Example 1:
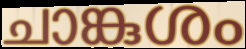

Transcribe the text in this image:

ചാങ്കുശം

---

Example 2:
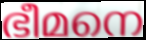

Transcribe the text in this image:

ഭീമനെ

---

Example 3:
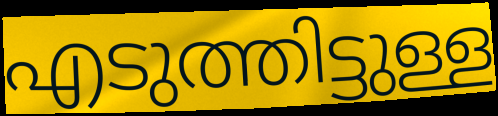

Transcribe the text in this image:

എടുത്തിട്ടുള്ള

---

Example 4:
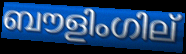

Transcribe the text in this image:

ബൗളിംഗില്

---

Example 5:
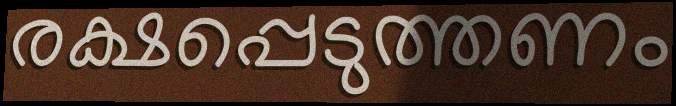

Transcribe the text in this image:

രക്ഷപ്പെടുത്തണം